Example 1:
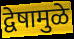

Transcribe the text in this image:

द्वेषामुळे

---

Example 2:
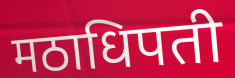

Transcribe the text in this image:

मठाधिपती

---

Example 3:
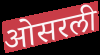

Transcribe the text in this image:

ओसरली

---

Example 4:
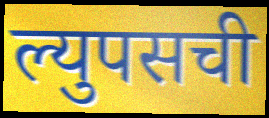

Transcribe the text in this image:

ल्युपसची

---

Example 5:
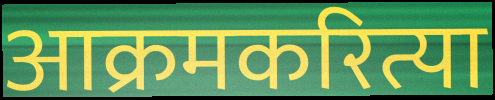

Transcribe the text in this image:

आक्रमकरित्या